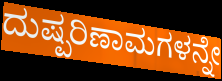
ದುಷ್ಪರಿಣಾಮಗಳನ್ನೇ